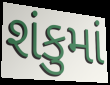
શંકુમાં